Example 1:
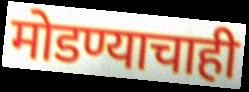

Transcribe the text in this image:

मोडण्याचाही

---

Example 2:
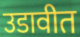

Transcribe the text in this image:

उडावीत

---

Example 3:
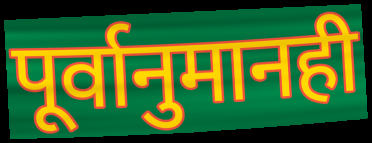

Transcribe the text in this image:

पूर्वानुमानही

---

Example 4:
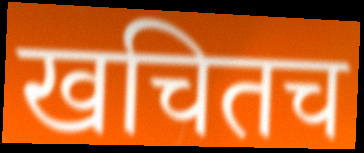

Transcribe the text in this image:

खचितच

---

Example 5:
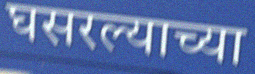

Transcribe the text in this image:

घसरल्याच्या